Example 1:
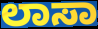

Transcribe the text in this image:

ಲಾಸಾ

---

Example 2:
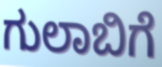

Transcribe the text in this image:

ಗುಲಾಬಿಗೆ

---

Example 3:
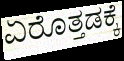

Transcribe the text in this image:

ಏರೊತ್ತಡಕ್ಕೆ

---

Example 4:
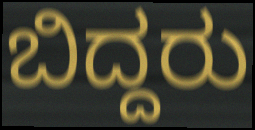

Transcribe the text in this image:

ಬಿದ್ದರು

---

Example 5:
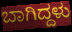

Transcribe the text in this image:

ಬಾಗಿದ್ದಳು